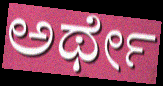
ಅರ್ಥೇ